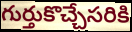
గుర్తుకొచ్చేసరికి